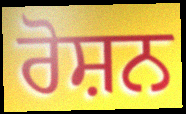
ਰੋਸ਼ਨ